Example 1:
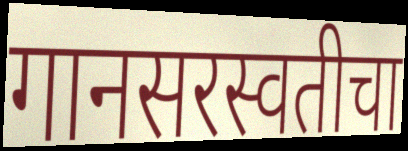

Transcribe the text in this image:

गानसरस्वतीचा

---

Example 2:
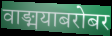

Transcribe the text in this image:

वाङ्मयाबरोबर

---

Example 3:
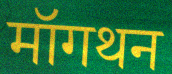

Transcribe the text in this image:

मॉगथन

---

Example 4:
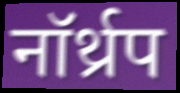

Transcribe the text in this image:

नॉर्थ्रप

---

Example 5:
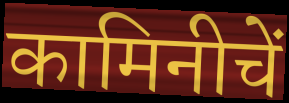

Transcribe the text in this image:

कामिनीचें